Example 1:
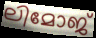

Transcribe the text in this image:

ലിമോജ്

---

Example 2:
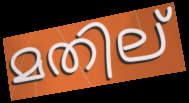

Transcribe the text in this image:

മതില്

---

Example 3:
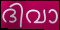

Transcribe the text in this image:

ദിവാ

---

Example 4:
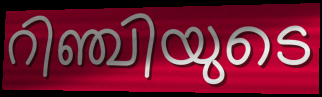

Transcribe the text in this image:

റിഞ്ചിയുടെ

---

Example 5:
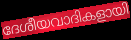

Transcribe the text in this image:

ദേശീയവാദികളായി